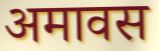
अमावस